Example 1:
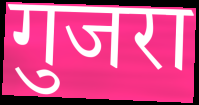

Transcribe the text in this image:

गुजरा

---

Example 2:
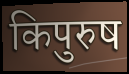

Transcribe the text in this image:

किपुरुष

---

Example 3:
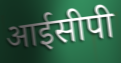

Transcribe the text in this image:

आईसीपी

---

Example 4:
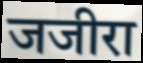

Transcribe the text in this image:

जजीरा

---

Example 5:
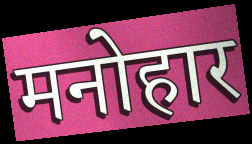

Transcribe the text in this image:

मनोहार